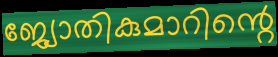
ജ്യോതികുമാറിന്റെ